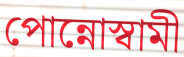
পোন্নোস্বামী